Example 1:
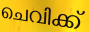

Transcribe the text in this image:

ചെവിക്ക്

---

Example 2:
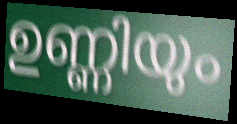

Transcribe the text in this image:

ഉണ്ണിയും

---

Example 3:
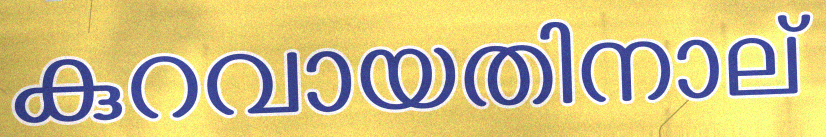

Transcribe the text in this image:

കുറവായതിനാല്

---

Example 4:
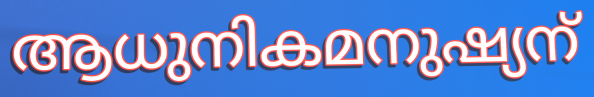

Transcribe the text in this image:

ആധുനികമനുഷ്യന്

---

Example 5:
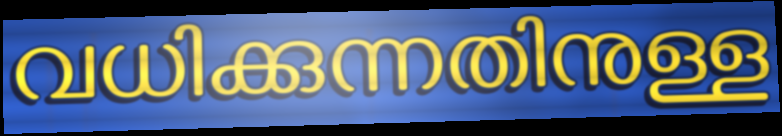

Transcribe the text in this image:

വധിക്കുന്നതിനുള്ള